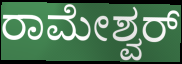
ರಾಮೇಶ್ವರ್